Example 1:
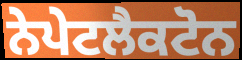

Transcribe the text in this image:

ਨੇਪੇਟਲੈਕਟੋਨ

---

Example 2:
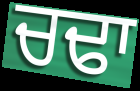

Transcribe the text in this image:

ਚਢਾ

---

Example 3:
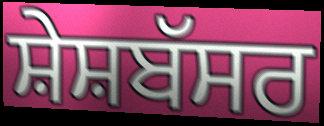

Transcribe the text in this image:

ਸ਼ੇਸ਼ਬੱਸਰ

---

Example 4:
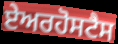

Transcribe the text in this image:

ਏਅਰਹੋਸਟੈਸ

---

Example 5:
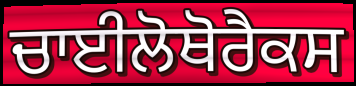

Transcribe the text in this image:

ਚਾਈਲੋਥੋਰੈਕਸ